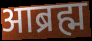
आब्रह्म